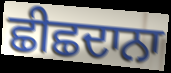
ਛੀਛਦਾਨਾ